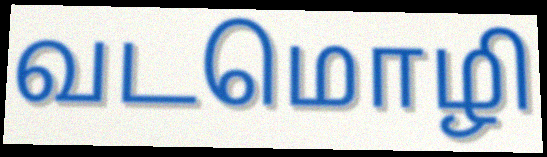
வடமொழி